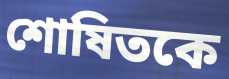
শোষিতকে